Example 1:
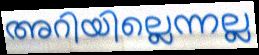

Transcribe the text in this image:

അറിയില്ലെന്നല്ല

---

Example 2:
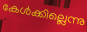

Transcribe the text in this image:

കേൾക്കില്ലെന്നു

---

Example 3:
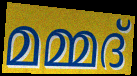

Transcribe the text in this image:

മമ്മദ്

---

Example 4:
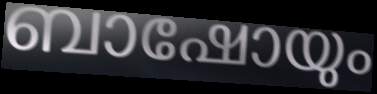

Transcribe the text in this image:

ബാഷോയും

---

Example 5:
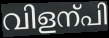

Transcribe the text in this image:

വിളന്പി